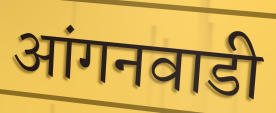
आंगनवाडी